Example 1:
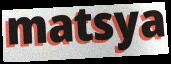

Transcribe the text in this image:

matsya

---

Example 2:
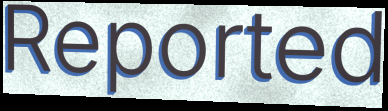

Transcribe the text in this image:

Reported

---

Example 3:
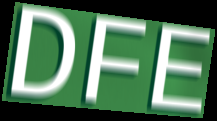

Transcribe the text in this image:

DFE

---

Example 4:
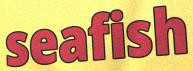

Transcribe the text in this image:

seafish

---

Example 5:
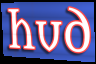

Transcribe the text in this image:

hud